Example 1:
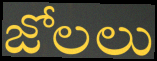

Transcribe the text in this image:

జోలలు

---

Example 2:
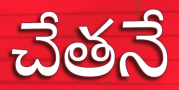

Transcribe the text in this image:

చేతనే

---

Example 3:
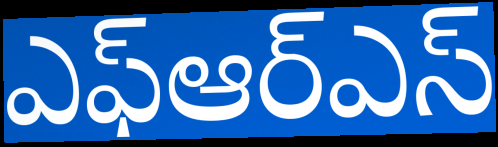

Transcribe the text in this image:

ఎఫ్ఆర్ఎస్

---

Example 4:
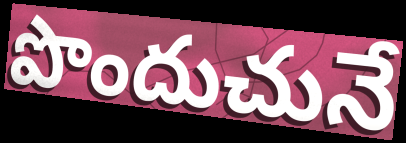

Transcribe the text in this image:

పొందుచునే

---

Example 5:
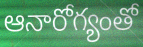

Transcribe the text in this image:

ఆనారోగ్యంతో